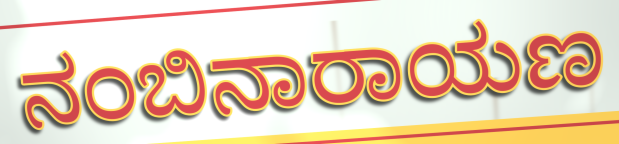
ನಂಬಿನಾರಾಯಣ